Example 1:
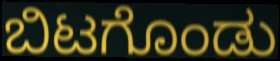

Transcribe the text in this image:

ಬಿಟಗೊಂಡು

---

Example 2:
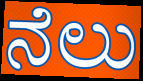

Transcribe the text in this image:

ನೆಲು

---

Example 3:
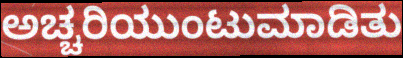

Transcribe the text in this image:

ಅಚ್ಚರಿಯುಂಟುಮಾಡಿತು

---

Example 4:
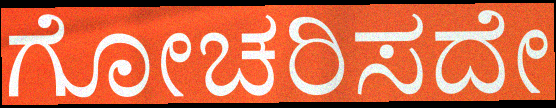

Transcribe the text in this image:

ಗೋಚರಿಸದೇ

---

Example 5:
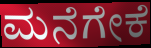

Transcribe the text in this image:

ಮನೆಗೇಕೆ